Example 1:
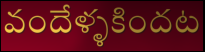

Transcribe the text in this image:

వందేళ్ళకిందట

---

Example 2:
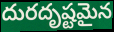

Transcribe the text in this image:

దురదృష్టమైన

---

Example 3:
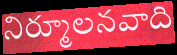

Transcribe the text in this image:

నిర్మూలనవాది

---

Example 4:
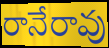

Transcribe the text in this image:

రానేరావు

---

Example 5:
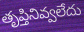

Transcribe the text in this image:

తృప్తినివ్వలేదు